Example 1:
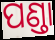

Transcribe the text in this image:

ପଣ୍ଡା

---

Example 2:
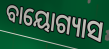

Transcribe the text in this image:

ବାୟୋଗ୍ୟାସ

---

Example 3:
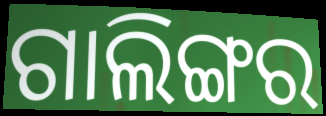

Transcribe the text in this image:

ଗାଲିଙ୍ଗର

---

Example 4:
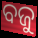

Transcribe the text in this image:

ବଜୁ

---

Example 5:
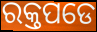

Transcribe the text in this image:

ରକ୍ତପଡେ